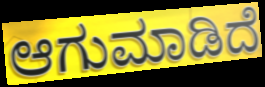
ಆಗುಮಾಡಿದೆ